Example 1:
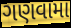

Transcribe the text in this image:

ગણવામા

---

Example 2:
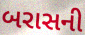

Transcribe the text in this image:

બરાસની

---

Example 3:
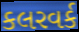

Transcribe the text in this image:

કલરવર્ક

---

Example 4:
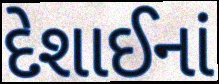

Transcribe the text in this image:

દેશાઈનાં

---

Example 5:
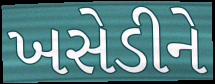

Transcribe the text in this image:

ખસેડીને